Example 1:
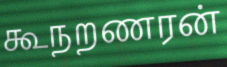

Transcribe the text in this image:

கூநறணரன்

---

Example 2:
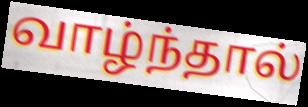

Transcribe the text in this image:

வாழ்ந்தால்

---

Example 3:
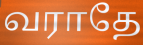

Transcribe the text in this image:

வராதே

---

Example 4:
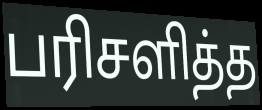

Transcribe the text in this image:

பரிசளித்த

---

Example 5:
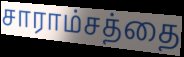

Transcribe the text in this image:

சாராம்சத்தை